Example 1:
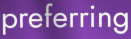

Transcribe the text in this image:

preferring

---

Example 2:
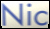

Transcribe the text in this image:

Nic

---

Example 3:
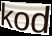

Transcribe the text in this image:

kod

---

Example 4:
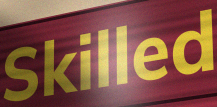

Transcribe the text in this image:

Skilled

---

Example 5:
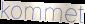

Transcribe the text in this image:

kommet